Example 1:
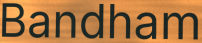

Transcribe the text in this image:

Bandham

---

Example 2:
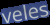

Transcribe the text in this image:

veles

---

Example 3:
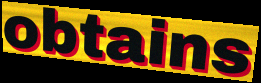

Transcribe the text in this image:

obtains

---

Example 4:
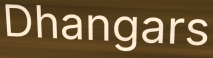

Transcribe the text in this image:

Dhangars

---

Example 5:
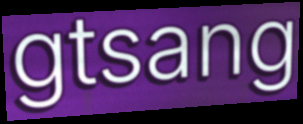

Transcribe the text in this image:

gtsang